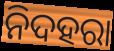
ନିଦହରା